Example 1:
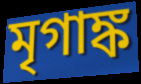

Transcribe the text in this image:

মৃগাঙ্ক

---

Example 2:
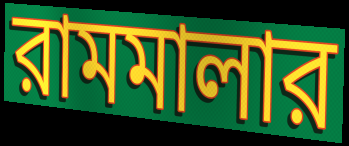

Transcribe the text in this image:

রামমালার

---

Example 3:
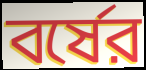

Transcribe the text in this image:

বর্ষের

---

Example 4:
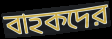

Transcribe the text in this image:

বাহকদের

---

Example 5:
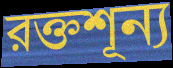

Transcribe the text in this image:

রক্তশূন্য